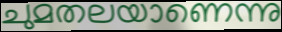
ചുമതലയാണെന്നു